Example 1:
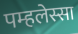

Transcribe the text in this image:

पम्हलेस्सा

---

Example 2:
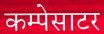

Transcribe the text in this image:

कम्पेसाटर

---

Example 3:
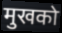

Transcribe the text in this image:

मुखको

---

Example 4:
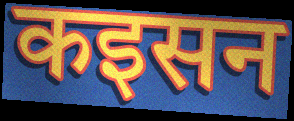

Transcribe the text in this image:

कइसन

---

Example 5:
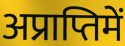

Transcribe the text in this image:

अप्राप्तिमें